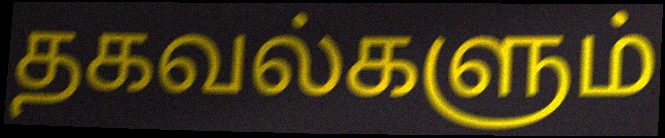
தகவல்களும்